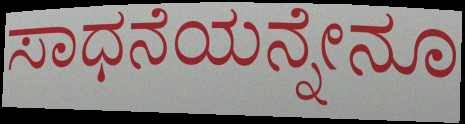
ಸಾಧನೆಯನ್ನೇನೂ